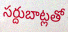
సర్దుబాట్లతో